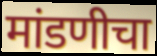
मांडणीचा